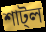
শাট্ল